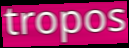
tropos